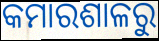
କମାରଶାଳରୁ